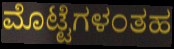
ಮೊಟ್ಟೆಗಳಂತಹ